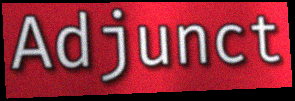
Adjunct